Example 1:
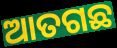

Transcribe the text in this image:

ଆତଗଛ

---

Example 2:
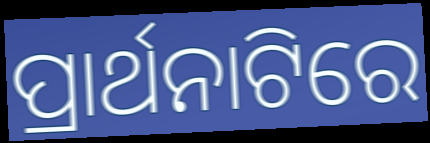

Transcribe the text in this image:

ପ୍ରାର୍ଥନାଟିରେ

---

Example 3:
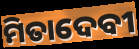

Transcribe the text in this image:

ମିତାଦେବୀ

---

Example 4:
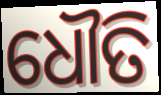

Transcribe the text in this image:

ଧୌତି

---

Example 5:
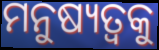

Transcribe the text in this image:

ମନୁଷ୍ୟତ୍ୱକୁ